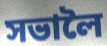
সভালৈ